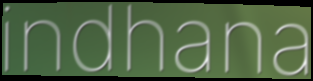
indhana